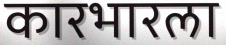
कारभारला